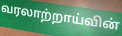
வரலாற்றாய்வின்